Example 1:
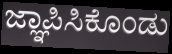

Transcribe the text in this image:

ಜ್ಞಾಪಿಸಿಕೊಂಡು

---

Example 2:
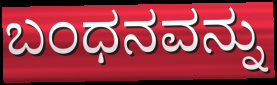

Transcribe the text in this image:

ಬಂಧನವನ್ನು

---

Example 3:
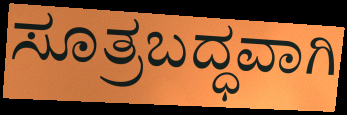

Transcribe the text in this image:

ಸೂತ್ರಬದ್ಧವಾಗಿ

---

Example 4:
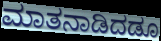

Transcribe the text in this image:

ಮಾತನಾಡಿದಡೂ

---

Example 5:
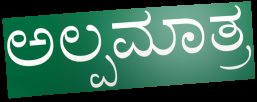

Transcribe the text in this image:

ಅಲ್ಪಮಾತ್ರ